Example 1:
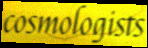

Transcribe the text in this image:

cosmologists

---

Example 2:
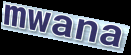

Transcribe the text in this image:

mwana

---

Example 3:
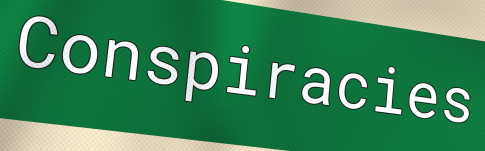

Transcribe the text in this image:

Conspiracies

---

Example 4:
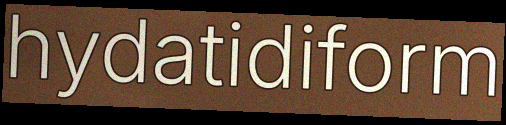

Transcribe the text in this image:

hydatidiform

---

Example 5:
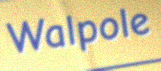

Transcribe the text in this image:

Walpole